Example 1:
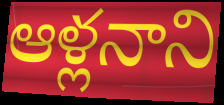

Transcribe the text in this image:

ఆళ్లనాని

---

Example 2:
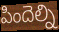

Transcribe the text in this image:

పిందెల్ని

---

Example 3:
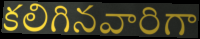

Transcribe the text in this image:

కలిగినవారిగా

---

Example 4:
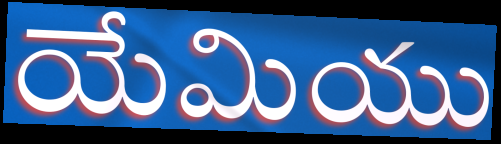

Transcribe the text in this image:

యేమియు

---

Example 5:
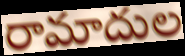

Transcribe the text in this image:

రామాదుల